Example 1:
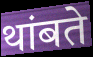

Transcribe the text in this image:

थांबते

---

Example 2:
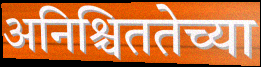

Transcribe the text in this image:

अनिश्चिततेच्या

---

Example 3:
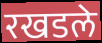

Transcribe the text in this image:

रखडले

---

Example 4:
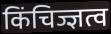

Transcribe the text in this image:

किंचिज्ज्ञत्व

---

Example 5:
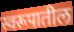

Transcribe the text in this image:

स्वरूपातील